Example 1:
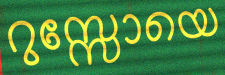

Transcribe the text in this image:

റുസ്സോയെ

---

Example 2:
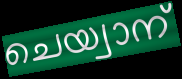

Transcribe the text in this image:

ചെയ്വാന്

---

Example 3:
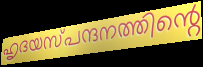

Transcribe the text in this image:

ഹൃദയസ്പന്ദനത്തിന്റെ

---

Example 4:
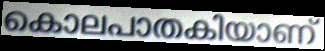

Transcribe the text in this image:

കൊലപാതകിയാണ്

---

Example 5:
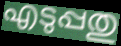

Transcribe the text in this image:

എടുപ്പതു